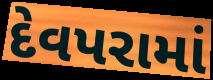
દેવપરામાં